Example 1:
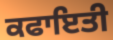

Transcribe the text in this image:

ਕਫਾਇਤੀ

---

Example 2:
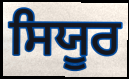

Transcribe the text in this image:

ਸਿਯੂਰ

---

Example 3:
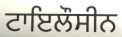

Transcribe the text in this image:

ਟਾਇਲੌਸੀਨ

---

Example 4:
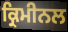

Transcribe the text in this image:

ਕ੍ਰਿਮੀਨਲ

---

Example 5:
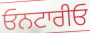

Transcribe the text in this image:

ਓਨਟਾਰੀਓ